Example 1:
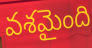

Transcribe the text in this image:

వశమైంది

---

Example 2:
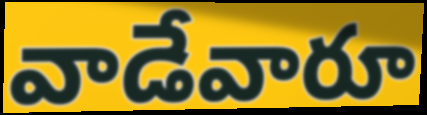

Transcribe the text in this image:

వాడేవారూ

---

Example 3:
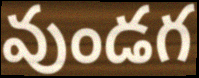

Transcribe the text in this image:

వుండగ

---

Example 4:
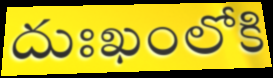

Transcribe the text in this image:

దుఃఖంలోకి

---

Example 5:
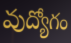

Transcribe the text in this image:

వుద్యోగం